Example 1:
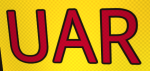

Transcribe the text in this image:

UAR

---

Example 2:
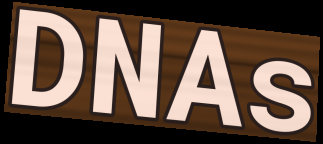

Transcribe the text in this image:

DNAs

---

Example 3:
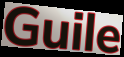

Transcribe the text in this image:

Guile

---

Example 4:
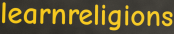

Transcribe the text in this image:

learnreligions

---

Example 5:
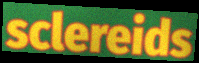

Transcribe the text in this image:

sclereids